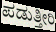
ಪಡುತ್ತೀರಿ